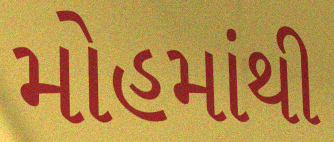
મોહમાંથી